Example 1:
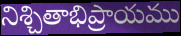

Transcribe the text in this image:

నిశ్చితాభిప్రాయము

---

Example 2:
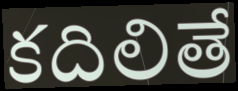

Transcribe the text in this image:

కదిలితే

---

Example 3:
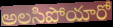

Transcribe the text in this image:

అలసిపోయారో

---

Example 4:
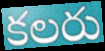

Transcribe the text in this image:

కలరు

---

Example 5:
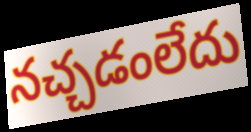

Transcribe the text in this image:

నచ్చడంలేదు